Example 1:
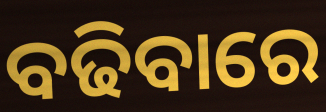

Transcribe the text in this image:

ବଢିବାରେ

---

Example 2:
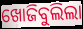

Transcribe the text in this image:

ଖୋଜିବୁଲିଲା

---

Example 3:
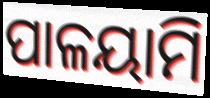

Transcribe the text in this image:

ପାଳୟାମି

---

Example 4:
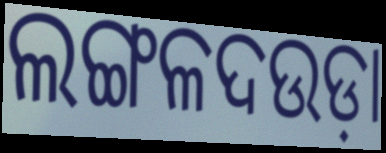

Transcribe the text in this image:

ଲଙ୍ଗଳଦଉଡ଼ା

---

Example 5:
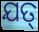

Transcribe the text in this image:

ଯତ୍